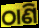
ଠାଣି